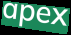
apex